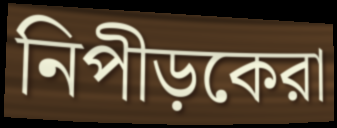
নিপীড়কেরা